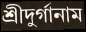
শ্রীদুর্গানাম